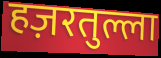
हज़रतुल्ला